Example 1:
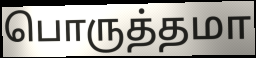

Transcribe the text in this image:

பொருத்தமா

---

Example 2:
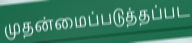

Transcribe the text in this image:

முதன்மைப்படுத்தப்பட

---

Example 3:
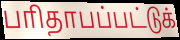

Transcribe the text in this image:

பரிதாபப்பட்டுக்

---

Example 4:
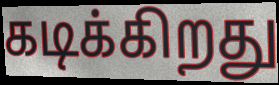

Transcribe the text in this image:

கடிக்கிறது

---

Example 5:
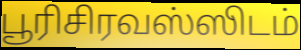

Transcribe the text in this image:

பூரிசிரவஸ்ஸிடம்